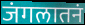
जंगलातनं